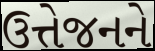
ઉત્તેજનને